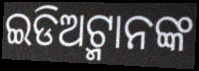
ଇଡିଅଟ୍ମାନଙ୍କ